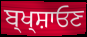
ਬ੍ਖ੍ਸ਼ਾਓਣ